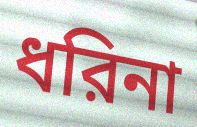
ধরিনা